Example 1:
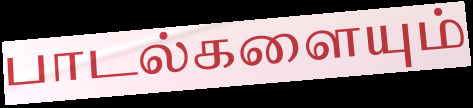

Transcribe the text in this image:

பாடல்களையும்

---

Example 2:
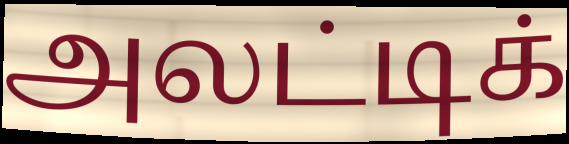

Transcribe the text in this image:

அலட்டிக்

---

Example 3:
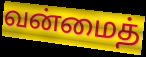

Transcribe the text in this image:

வன்மைத்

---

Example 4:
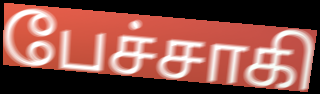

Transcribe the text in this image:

பேச்சாகி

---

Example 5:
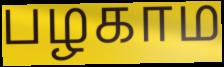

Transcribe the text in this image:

பழகாம